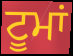
ਟੂਮਾਂ